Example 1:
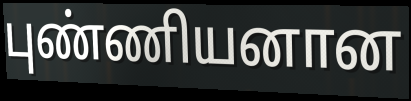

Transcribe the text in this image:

புண்ணியனான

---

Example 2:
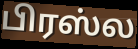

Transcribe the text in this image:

பிரஸ்ல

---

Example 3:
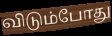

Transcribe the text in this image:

விடும்போது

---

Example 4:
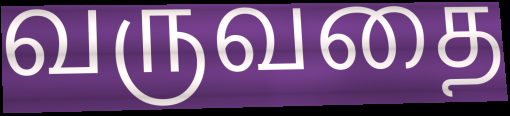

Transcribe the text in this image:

வருவதை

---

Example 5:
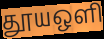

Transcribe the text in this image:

தூயஒளி